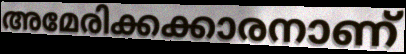
അമേരിക്കക്കാരനാണ്